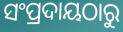
ସଂପ୍ରଦାୟଠାରୁ